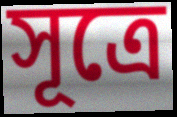
সূত্ৰে